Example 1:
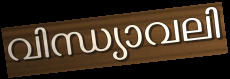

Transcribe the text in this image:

വിന്ധ്യാവലി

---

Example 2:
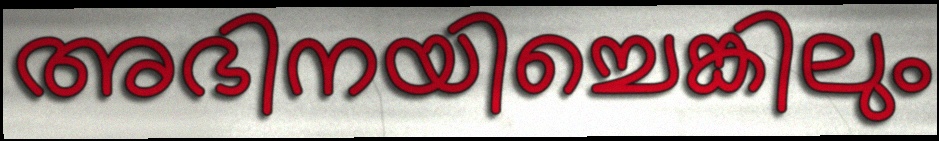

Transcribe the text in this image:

അഭിനയിച്ചെങ്കിലും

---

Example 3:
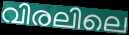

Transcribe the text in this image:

വിരലിലെ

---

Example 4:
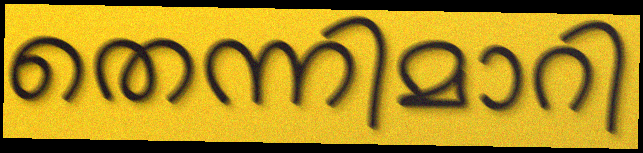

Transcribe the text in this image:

തെന്നിമാറി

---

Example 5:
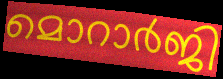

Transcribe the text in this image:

മൊറാർജി